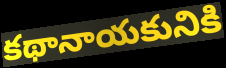
కథానాయకునికి